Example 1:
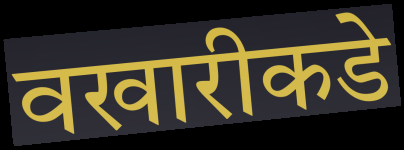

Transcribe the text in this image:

वखारीकडे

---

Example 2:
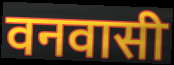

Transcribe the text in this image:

वनवासी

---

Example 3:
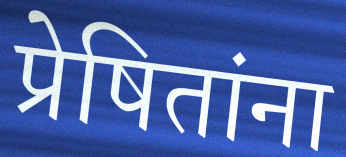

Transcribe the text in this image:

प्रेषितांना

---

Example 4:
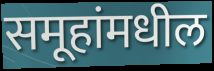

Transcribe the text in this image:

समूहांमधील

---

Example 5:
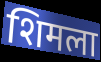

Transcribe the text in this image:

शिमला